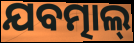
ଯବତ୍ମାଲ୍